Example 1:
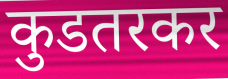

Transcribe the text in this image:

कुडतरकर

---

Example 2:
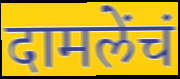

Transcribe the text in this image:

दामलेंचं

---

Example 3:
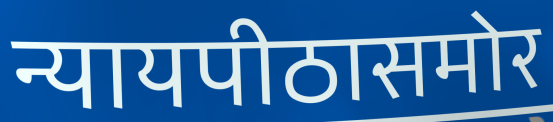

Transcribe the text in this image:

न्यायपीठासमोर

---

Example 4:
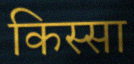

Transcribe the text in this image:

किस्सा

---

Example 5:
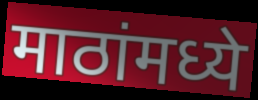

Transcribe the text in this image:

माठांमध्ये